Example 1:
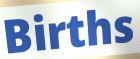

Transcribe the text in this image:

Births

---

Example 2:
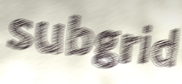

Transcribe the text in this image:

subgrid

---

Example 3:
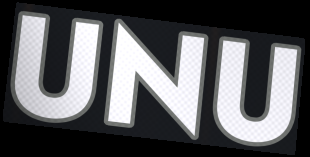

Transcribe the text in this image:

UNU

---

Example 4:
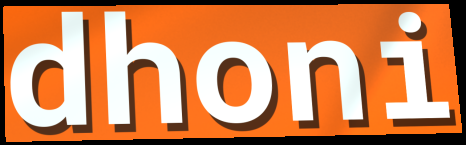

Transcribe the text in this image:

dhoni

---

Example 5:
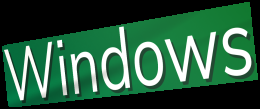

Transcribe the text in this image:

Windows